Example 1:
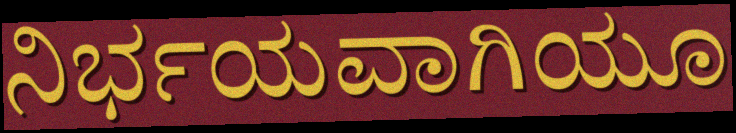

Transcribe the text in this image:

ನಿರ್ಭಯವಾಗಿಯೂ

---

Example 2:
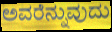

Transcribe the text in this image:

ಅವರೆನ್ನುವುದು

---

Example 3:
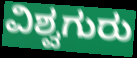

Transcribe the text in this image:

ವಿಶ್ವಗುರು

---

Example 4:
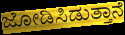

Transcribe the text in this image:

ಜೋಡಿಸಿಡುತ್ತಾನೆ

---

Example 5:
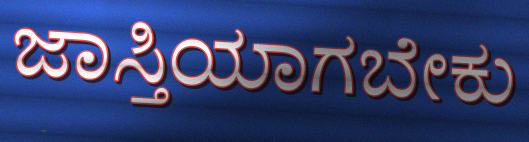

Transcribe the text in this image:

ಜಾಸ್ತಿಯಾಗಬೇಕು